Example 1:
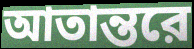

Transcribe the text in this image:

আতান্তরে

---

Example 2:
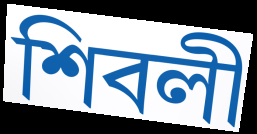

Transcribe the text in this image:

শিবলী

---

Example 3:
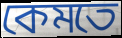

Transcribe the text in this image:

কেমতে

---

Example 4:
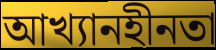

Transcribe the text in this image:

আখ্যানহীনতা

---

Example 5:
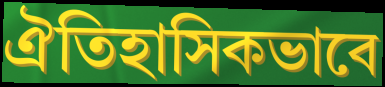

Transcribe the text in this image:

ঐতিহাসিকভাবে